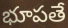
భూపతే